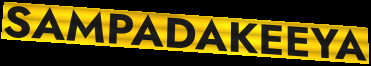
SAMPADAKEEYA